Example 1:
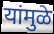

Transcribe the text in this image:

यांमुळे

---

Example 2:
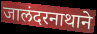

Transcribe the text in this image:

जालंदरनाथाने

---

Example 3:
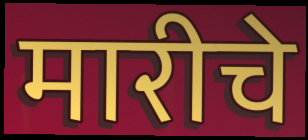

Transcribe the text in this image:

मारीचे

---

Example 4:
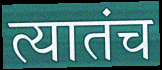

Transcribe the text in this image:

त्यातंच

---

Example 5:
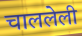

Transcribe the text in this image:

चाललेली